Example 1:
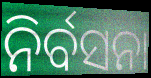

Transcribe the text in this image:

ନିର୍ବସନା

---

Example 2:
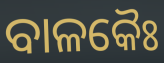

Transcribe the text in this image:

ବାଳକୈଃ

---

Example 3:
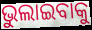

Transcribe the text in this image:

ଭୁଲାଇବାକୁ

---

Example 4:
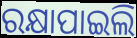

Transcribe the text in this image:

ରକ୍ଷାପାଇଲି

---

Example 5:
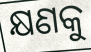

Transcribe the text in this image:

କ୍ଷଣକୁ